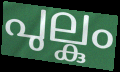
പുല്കും